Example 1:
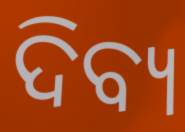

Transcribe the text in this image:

ଦିବ୍ୟ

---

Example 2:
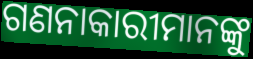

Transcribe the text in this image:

ଗଣନାକାରୀମାନଙ୍କୁ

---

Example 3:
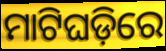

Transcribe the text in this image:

ମାଟିଘଡ଼ିରେ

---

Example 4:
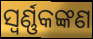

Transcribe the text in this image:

ସ୍ୱର୍ଣ୍ଣକଙ୍କଣ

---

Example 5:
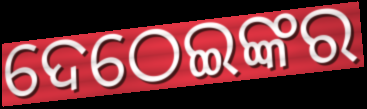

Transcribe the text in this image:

ଦେଠେଇଙ୍କର